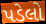
પડેલો